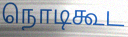
நொடிகூட